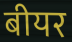
बीयर